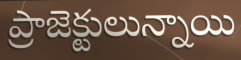
ప్రాజెక్టులున్నాయి